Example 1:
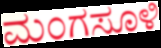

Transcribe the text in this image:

ಮಂಗಸೂಳಿ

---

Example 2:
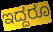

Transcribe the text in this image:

ಇದ್ದರೂ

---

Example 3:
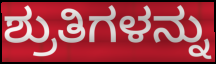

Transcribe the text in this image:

ಶ್ರುತಿಗಳನ್ನು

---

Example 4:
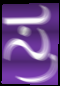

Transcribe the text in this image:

ಸ್ರ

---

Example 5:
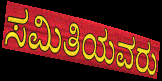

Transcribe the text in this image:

ಸಮಿತಿಯವರು